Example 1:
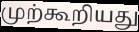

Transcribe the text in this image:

முற்கூறியது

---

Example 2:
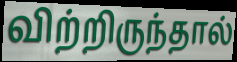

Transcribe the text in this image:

விற்றிருந்தால்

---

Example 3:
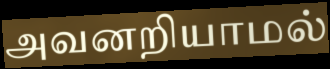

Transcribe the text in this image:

அவனறியாமல்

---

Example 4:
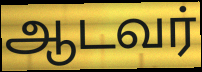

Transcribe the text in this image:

ஆடவர்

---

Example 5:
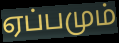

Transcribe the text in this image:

ஏப்பமும்